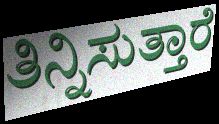
ತಿನ್ನಿಸುತ್ತಾರೆ